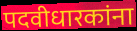
पदवीधारकांना